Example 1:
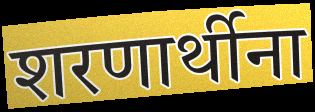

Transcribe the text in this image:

शरणार्थीना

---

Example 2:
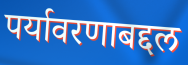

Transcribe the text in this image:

पर्यावरणाबद्दल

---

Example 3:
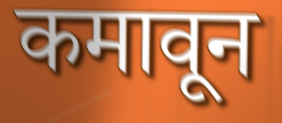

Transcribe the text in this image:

कमावून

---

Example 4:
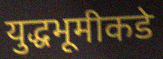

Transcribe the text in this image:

युद्धभूमीकडे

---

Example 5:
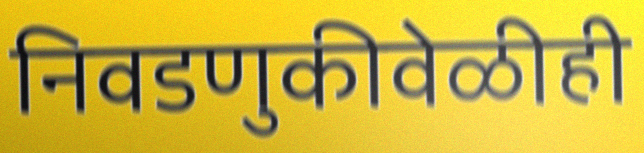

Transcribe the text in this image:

निवडणुकीवेळीही